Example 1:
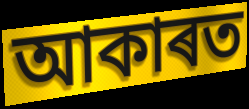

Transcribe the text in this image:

আকাৰত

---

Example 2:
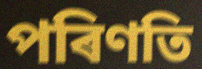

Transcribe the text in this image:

পৰিণতি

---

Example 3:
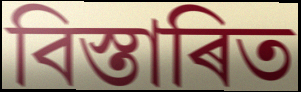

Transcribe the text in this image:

বিস্তাৰিত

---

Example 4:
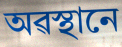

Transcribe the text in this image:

অৱস্থানে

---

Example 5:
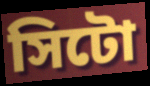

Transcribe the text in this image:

সিটো